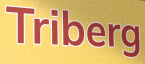
Triberg